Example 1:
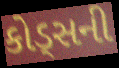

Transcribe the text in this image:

કોડ્સની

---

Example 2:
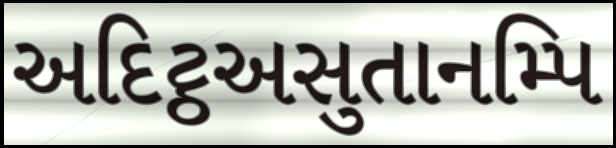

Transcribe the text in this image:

અદિટ્ઠઅસુતાનમ્પિ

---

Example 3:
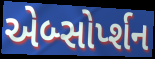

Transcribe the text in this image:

એબ્સોર્પ્શન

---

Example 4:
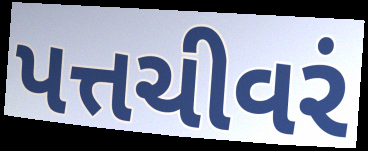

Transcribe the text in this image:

પત્તચીવરં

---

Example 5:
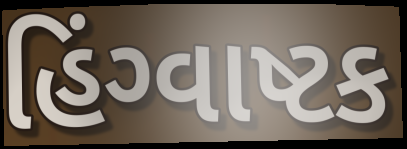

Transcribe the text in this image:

હિંગ્વાષ્ટક